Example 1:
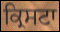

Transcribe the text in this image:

ਕ੍ਰਿਸਟਾ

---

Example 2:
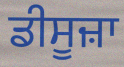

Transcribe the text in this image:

ਡੀਸੂਜ਼ਾ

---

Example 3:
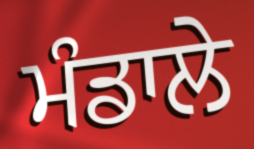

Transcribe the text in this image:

ਮੰਡਾਲੇ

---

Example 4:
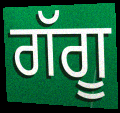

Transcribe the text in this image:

ਗੱਗੂ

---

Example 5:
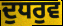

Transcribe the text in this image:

ਦੁਧਰੁਵ